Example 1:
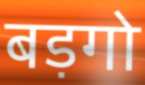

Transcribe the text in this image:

बड़गो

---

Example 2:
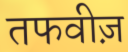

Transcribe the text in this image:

तफवीज़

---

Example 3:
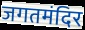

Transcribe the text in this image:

जगतमंदिर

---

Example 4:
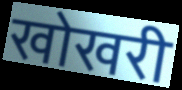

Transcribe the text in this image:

खोखरी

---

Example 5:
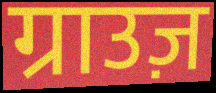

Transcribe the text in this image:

ग्राउज़